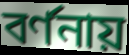
বর্ণনায়